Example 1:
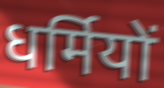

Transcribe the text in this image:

धर्मियों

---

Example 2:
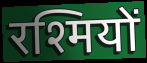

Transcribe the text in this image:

रश्मियों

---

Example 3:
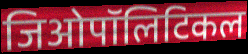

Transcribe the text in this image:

जिओपॉलिटिकल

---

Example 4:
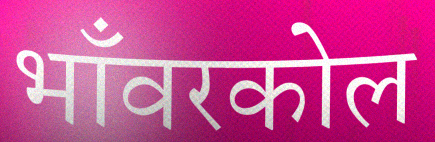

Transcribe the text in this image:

भाँवरकोल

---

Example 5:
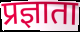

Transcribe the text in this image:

प्रज्ञाता